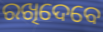
ରଖିଦେବେ